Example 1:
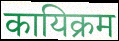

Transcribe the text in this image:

कायिक्रम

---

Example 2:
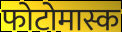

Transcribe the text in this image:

फोटोमास्क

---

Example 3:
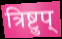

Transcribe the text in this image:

त्रिष्टुप्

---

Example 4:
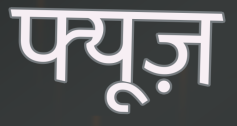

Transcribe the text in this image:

फ्यूज़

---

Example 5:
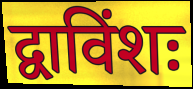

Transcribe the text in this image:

द्वाविंशः